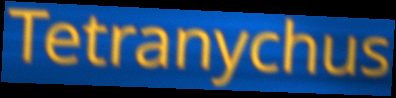
Tetranychus